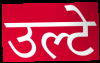
उल्टे